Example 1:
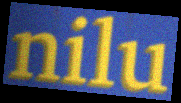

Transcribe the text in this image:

nilu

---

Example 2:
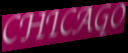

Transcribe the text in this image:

CHICAGO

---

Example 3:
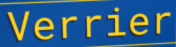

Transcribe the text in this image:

Verrier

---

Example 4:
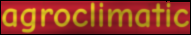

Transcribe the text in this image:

agroclimatic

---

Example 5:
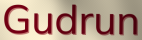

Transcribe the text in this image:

Gudrun